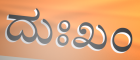
ದುಃಖಂ